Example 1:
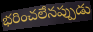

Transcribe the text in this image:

భరించలేనప్పుడు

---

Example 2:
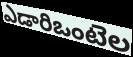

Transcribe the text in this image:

ఎడారిఒంటెల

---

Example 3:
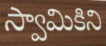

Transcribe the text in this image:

స్వామికిని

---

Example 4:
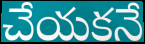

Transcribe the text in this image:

చేయకనే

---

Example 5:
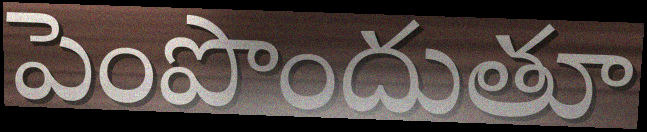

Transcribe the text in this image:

పెంపొందుతూ